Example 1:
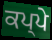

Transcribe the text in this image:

ਕਪ੍ਪੇ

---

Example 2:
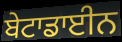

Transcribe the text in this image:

ਬੇਟਾਡਾਈਨ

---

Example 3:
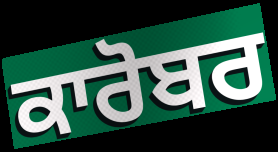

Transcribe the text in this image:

ਕਾਰੋਬਰ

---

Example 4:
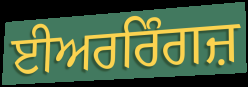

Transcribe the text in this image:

ਈਅਰਰਿੰਗਜ਼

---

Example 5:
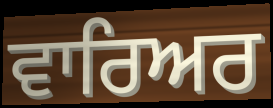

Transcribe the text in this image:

ਵਾਰਿਅਰ